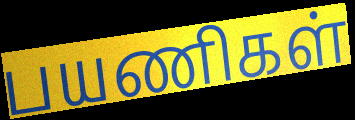
பயணிகள்